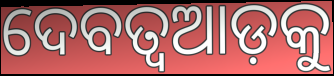
ଦେବତ୍ୱଆଡ଼କୁ